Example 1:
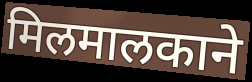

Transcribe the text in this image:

मिलमालकाने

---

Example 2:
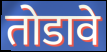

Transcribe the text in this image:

तोडावे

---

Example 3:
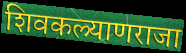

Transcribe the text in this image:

शिवकल्याणराजा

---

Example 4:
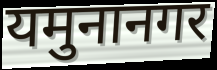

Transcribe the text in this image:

यमुनानगर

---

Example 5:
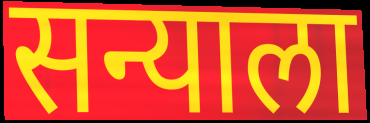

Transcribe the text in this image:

सन्याला